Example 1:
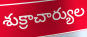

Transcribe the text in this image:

శుక్రాచార్యుల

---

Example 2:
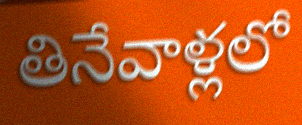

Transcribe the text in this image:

తినేవాళ్లలో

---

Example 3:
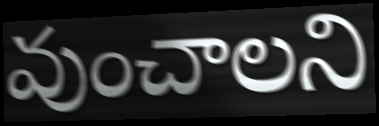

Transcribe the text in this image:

వుంచాలని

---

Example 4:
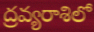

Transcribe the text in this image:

ద్రవ్యరాశిలో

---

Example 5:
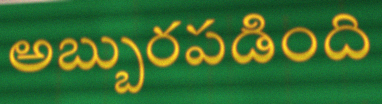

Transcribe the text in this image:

అబ్బురపడింది